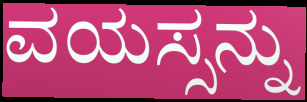
ವಯಸ್ಸನ್ನು